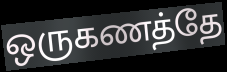
ஒருகணத்தே